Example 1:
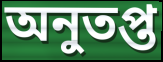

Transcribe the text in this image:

অনুতপ্ত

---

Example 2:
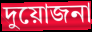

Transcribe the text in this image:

দুয়োজনা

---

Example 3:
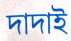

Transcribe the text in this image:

দাদাই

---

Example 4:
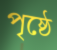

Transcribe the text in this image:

পৃষ্ঠে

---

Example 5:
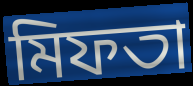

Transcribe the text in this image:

মিফতা